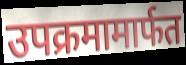
उपक्रमामार्फत